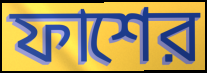
ফাশের